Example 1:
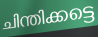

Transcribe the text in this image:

ചിന്തിക്കട്ടെ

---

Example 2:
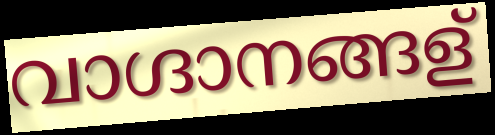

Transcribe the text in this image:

വാഗ്ദാനങ്ങള്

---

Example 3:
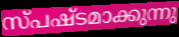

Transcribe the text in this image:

സ്പഷ്ടമാക്കുന്നു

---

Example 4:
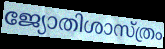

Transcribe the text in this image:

ജ്യോതിശാസ്ത്രം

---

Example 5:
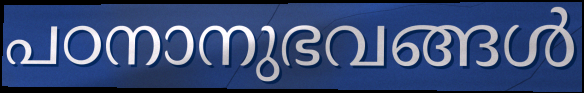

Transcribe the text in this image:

പഠനാനുഭവങ്ങൾ